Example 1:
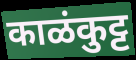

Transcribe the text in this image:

काळंकुट्ट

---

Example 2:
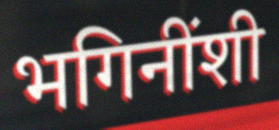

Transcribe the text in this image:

भगिनींशी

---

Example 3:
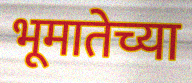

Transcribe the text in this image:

भूमातेच्या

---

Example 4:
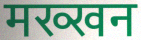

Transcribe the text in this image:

मख्खन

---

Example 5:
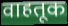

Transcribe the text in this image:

वाहतूक